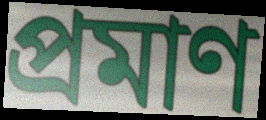
প্ৰমাণ